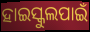
ହାଇସ୍କୁଲପାଇଁ